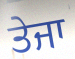
ਤੇਜਾ